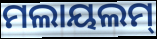
ମଲାୟଲମ୍